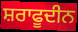
ਸ਼ਰਾਫੂਦੀਨ